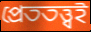
প্রেততত্ত্বই